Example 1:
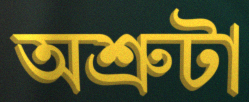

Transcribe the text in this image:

অশ্রুটা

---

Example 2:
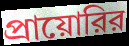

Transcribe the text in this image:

প্রায়োরির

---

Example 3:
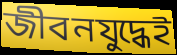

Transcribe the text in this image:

জীবনযুদ্ধেই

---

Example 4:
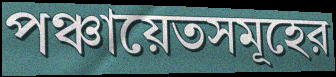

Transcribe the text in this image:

পঞ্চায়েতসমূহের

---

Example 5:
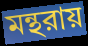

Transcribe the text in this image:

মন্থরায়